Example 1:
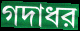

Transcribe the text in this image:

গদাধর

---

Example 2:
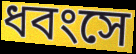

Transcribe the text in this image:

ধবংসে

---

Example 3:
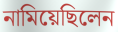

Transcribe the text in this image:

নামিয়েছিলেন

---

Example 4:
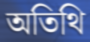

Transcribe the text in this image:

অতিথি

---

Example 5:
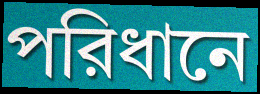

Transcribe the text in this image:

পরিধানে